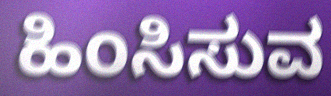
ಹಿಂಸಿಸುವ